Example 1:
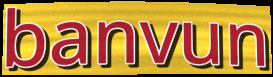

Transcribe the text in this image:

banvun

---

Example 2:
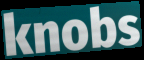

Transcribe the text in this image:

knobs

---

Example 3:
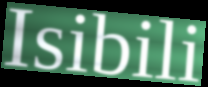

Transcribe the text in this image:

Isibili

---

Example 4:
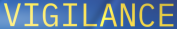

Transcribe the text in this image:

VIGILANCE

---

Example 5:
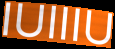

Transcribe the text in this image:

IUIIIU